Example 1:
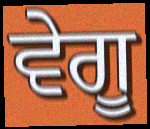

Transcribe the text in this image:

ਵੇਗੂ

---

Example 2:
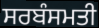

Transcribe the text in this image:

ਸਰਬੰਸਮਤੀ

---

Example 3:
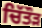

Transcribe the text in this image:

ਚਿੱਤੌੜ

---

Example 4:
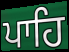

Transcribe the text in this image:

ਪਾਹਿ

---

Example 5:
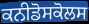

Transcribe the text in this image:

ਕਨੀਡੋਸਕੋਲਸ